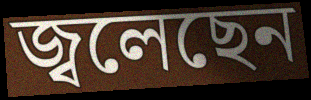
জ্বলেছেন